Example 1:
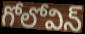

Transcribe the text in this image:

గోలోవిన్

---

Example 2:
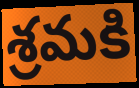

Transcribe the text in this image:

శ్రమకి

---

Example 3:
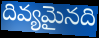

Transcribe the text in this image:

దివ్యమైనది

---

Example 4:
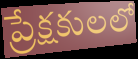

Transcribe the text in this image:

ప్రేక్షకులలో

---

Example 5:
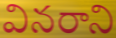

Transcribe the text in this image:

వినరాని